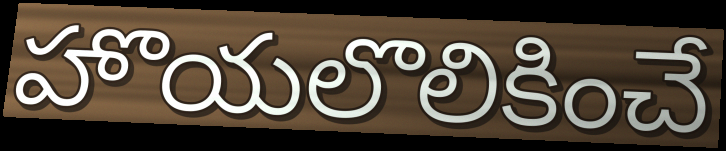
హొయలొలికించే